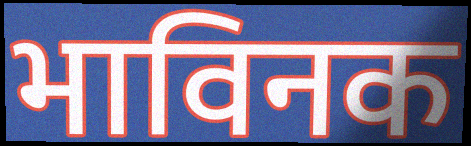
भाविनक